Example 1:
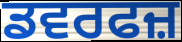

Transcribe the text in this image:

ਡਵਰਫਜ਼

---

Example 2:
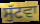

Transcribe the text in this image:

ਸੁੱਟਵਾ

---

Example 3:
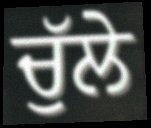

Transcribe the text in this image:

ਚੁੱਲੇ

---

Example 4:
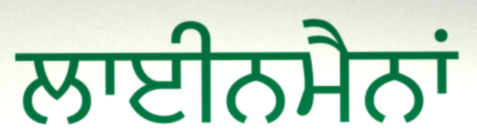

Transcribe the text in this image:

ਲਾਈਨਮੈਨਾਂ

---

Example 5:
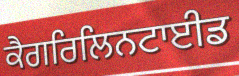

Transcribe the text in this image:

ਕੈਗਰਿਲਿਨਟਾਈਡ